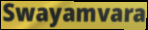
Swayamvara